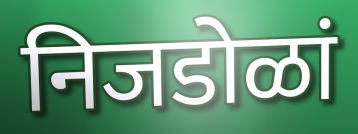
निजडोळां